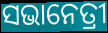
ସଭାନେତ୍ରୀ